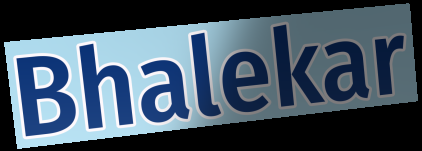
Bhalekar